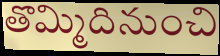
తొమ్మిదినుంచి